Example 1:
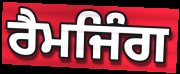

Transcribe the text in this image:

ਰੈਮਜਿੰਗ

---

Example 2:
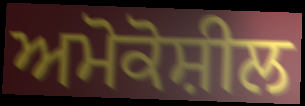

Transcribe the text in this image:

ਅਮੋਕੋਸ਼ੀਲ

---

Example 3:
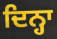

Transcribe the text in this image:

ਦਿਨ੍ਹਾ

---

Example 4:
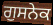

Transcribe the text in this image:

ਗੁਸਨੇਕ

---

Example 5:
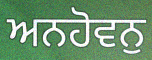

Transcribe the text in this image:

ਅਨਹੋਵਨੁ